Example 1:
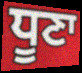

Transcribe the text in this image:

ਧੂਣਾ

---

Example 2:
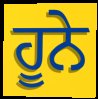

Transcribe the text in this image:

ਹੂਨੇ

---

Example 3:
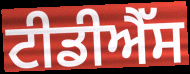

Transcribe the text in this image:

ਟੀਡੀਐੱਸ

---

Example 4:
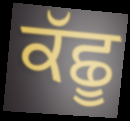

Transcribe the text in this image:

ਕੱਛੂ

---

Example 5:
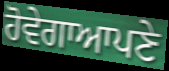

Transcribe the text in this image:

ਹੋਵੇਗਾਆਪਣੇ